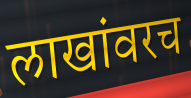
लाखांवरच